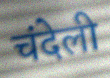
चंदेली